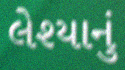
લેશ્યાનું